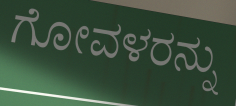
ಗೋವಳರನ್ನು